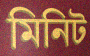
মিনিট